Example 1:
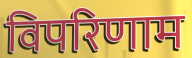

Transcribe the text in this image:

विपरिणाम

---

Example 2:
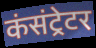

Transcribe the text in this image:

कंसंट्रेटर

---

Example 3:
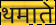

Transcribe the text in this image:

थमाते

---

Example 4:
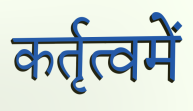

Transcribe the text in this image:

कर्तृत्वमें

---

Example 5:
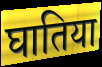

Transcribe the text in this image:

घातिया